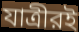
যাত্রীরই